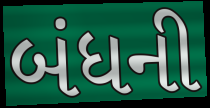
બંધની